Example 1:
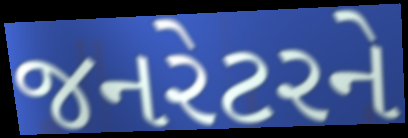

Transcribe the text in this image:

જનરેટરને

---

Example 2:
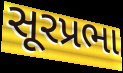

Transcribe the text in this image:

સૂરપ્રભા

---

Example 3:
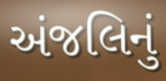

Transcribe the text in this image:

અંજલિનું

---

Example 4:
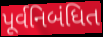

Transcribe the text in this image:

પૂર્વનિબંધિત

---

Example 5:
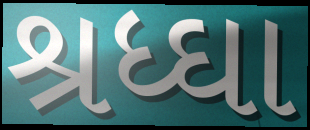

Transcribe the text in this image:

શ્રધ્ઘા